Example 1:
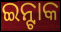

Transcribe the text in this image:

ଇନ୍ଟାକ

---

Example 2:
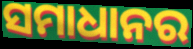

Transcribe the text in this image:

ସମାଧାନର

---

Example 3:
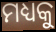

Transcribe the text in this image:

ମଧ୍ୟକୁ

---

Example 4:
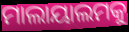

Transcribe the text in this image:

ମାଲାୟାଲମକୁ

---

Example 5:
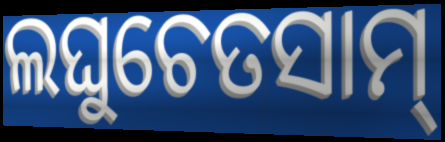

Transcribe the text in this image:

ଲଘୁଚେତସାମ୍